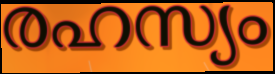
രഹസ്യം